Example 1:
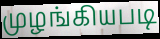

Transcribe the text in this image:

முழங்கியபடி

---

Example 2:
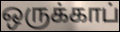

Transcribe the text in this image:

ஒருக்காப்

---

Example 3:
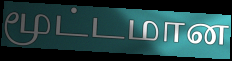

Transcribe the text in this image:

மூட்டமான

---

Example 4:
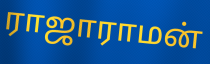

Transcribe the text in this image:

ராஜாராமன்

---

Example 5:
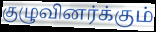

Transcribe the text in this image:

குழுவினர்க்கும்